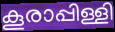
കൂരാപ്പിള്ളി